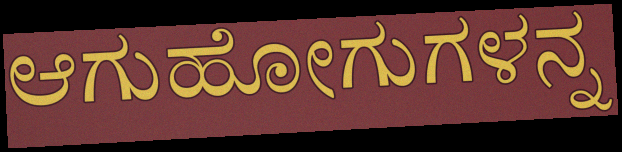
ಆಗುಹೋಗುಗಳನ್ನ